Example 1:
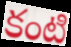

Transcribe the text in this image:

కంటి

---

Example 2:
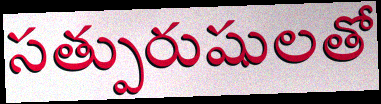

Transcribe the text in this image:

సత్పురుషులతో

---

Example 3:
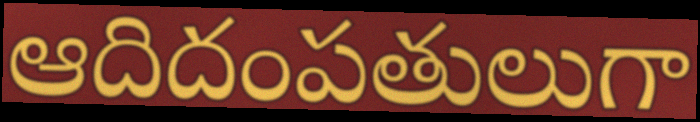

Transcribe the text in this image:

ఆదిదంపతులుగా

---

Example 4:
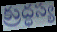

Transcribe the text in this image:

క్రుద్ధస్య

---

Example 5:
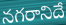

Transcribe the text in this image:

నగరానిదే